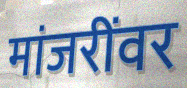
मांजरींवर